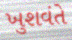
ખુશવંતે